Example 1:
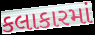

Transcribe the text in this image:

કલાકારમાં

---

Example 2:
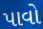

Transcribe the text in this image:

પાવો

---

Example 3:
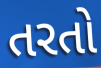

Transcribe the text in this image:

તરતો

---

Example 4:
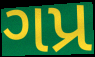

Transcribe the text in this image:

ગપ્ર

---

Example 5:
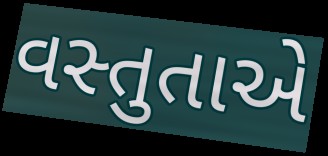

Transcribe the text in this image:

વસ્તુતાએ